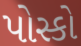
પોસ્કો